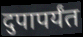
दुपापर्यंत